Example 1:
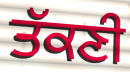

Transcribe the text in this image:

ਤੱਕਣੀ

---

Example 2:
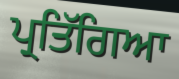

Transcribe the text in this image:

ਪ੍ਰਤਿੱਗਿਆ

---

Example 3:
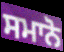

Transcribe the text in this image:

ਸਮਾਨੋ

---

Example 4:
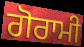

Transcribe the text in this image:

ਗੋਰਾਮੀ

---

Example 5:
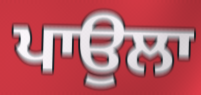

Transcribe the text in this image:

ਪਾਉਲਾ